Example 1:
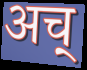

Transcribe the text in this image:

अच्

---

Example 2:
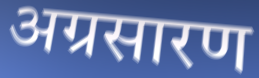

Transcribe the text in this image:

अग्रसारण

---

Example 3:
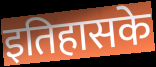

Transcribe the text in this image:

इतिहासके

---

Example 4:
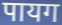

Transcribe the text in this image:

पायग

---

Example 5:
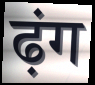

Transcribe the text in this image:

ढ़ंग